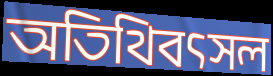
অতিথিবৎসল